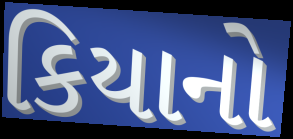
કિયાનો